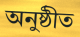
অনুষ্ঠীত